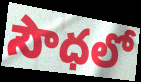
సౌధలో